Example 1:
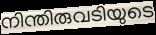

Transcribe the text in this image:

നിന്തിരുവടിയുടെ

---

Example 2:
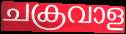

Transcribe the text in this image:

ചക്രവാള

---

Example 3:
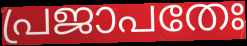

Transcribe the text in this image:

പ്രജാപതേഃ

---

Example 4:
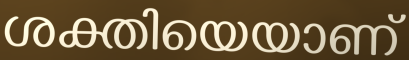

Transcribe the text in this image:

ശക്തിയെയാണ്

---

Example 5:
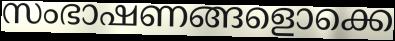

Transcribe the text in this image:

സംഭാഷണങ്ങളൊക്കെ